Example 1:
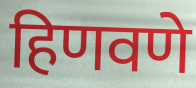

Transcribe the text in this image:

हिणवणे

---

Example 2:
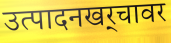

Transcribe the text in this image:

उत्पादनखर्चावर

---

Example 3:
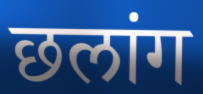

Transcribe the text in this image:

छलांग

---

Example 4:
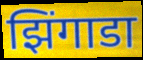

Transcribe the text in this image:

झिंगाडा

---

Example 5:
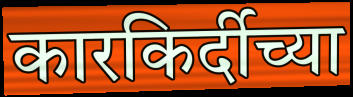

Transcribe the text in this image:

कारकिर्दीच्या